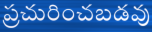
ప్రచురించబడవు